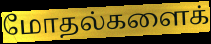
மோதல்களைக்